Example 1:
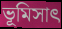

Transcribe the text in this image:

ভূমিসাৎ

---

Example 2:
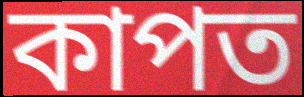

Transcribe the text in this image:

কাপত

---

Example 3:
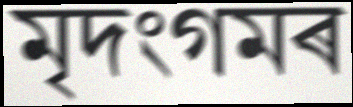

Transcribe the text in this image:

মৃদংগমৰ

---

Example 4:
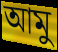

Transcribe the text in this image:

আমু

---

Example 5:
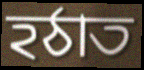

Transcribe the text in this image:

হঠাত